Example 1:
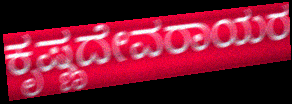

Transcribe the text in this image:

ಕೃಷ್ಣದೇವರಾಯರ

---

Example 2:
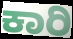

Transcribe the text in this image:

ಕಾರಿ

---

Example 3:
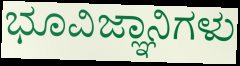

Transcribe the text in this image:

ಭೂವಿಜ್ಞಾನಿಗಳು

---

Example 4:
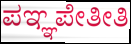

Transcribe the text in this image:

ಪಞ್ಞಪೇತೀತಿ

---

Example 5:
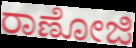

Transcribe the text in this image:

ರಾಣೋಜಿ